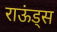
राऊंड्स